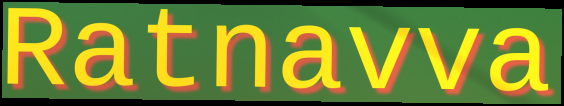
Ratnavva